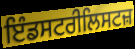
ਇੰਡਸਟਰੀਲਿਸਟਜ਼